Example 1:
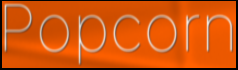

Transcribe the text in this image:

Popcorn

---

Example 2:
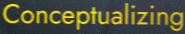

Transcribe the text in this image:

Conceptualizing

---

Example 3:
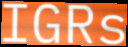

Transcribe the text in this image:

IGRs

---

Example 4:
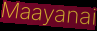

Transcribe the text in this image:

Maayanai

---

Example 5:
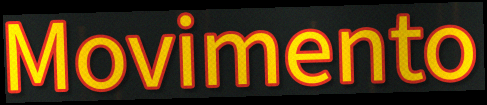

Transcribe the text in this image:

Movimento